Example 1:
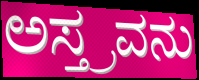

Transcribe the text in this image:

ಅಸ್ತ್ರವನು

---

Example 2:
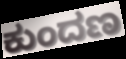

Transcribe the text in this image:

ಕುಂದಣ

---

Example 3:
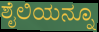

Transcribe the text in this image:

ಶೈಲಿಯನ್ನೂ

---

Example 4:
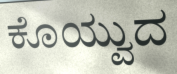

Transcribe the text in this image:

ಕೊಯ್ವುದ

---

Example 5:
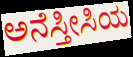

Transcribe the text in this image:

ಅನೆಸ್ತೀಸಿಯ